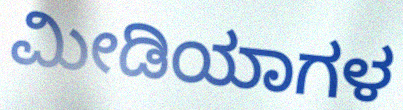
ಮೀಡಿಯಾಗಳ